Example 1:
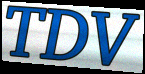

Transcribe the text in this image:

TDV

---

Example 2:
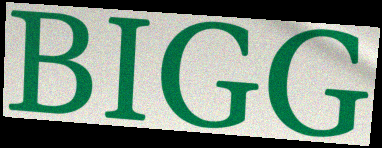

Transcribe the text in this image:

BIGG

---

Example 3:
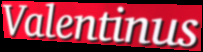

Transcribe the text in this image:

Valentinus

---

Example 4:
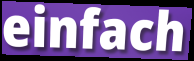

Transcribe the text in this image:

einfach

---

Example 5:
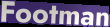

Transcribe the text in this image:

Footman